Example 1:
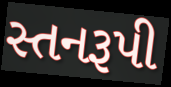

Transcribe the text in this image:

સ્તનરૂપી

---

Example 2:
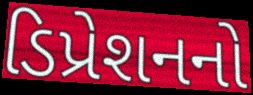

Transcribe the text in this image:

ડિપ્રેશનનો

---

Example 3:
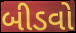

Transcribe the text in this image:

બીડવો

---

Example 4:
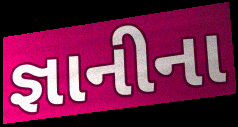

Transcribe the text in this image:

જ્ઞાનીના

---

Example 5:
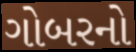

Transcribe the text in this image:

ગોબરનો